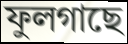
ফুলগাছে